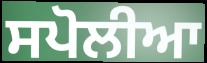
ਸਪੋਲੀਆ